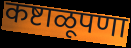
कष्टाळूपणा